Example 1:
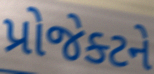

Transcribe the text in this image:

પ્રોજેક્ટને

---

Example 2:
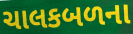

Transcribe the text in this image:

ચાલકબળના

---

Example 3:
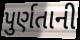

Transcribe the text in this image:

પુર્ણતાની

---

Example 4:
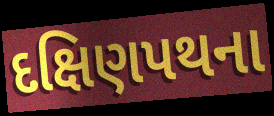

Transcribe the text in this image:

દક્ષિણપથના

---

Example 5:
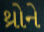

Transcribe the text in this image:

થ્રોને